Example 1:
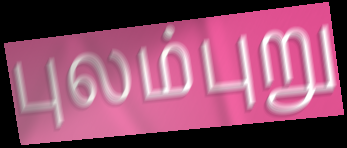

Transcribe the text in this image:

புலம்புறு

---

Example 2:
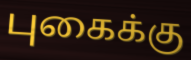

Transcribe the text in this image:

புகைக்கு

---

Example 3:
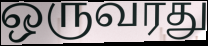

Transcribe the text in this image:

ஒருவரது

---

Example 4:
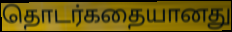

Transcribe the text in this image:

தொடர்கதையானது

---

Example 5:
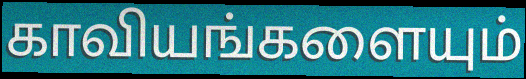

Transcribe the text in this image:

காவியங்களையும்